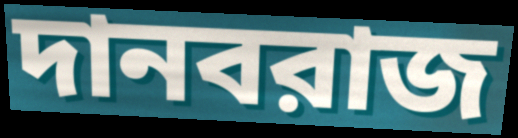
দানবরাজ